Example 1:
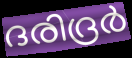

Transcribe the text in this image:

ദരിദ്രർ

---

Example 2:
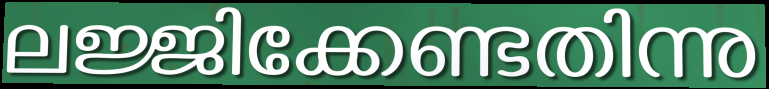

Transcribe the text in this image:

ലജ്ജിക്കേണ്ടതിന്നു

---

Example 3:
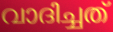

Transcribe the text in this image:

വാദിച്ചത്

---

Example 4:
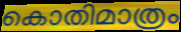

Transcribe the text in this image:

കൊതിമാത്രം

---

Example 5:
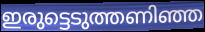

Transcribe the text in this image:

ഇരുട്ടെടുത്തണിഞ്ഞ